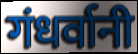
गंधर्वानी